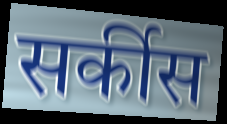
सर्कीस